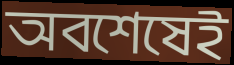
অবশেষেই